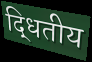
द्धितीय